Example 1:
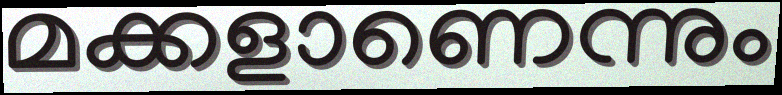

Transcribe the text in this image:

മക്കളാണെന്നും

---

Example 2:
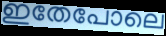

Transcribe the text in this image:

ഇതേപോലെ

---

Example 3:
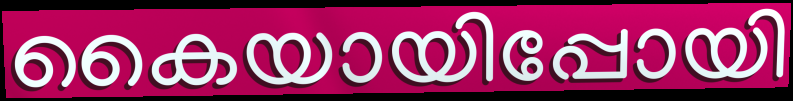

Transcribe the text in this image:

കൈയായിപ്പോയി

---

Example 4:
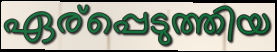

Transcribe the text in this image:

ഏര്പ്പെടുത്തിയ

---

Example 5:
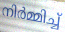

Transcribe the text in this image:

നിർമ്മിച്ച്